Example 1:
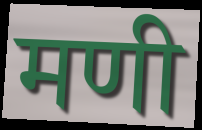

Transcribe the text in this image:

मणी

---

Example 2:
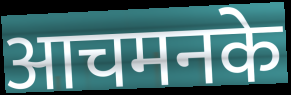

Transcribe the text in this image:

आचमनके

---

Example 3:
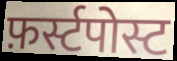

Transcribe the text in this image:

फ़र्स्टपोस्ट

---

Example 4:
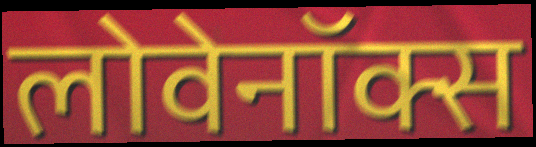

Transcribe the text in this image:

लोवेनॉक्स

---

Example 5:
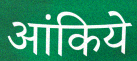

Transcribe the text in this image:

आंकिये